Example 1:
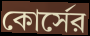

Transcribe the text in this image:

কোর্সের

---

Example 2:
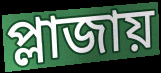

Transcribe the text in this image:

প্লাজায়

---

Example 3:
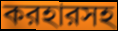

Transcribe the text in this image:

করহারসহ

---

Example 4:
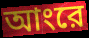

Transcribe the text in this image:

আংরে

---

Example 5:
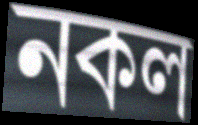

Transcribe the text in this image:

নকল